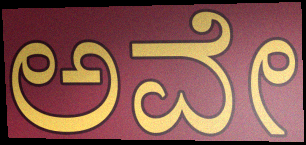
ಅವೇ